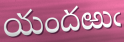
యందఱుఁ